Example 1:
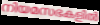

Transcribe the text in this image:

നിയമസഭകളിൽ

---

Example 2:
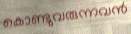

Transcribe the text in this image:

കൊണ്ടുവരുന്നവൻ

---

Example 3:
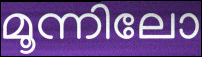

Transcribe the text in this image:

മൂന്നിലോ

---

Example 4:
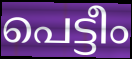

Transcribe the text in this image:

പെട്ടീം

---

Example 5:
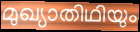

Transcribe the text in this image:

മുഖ്യാതിഥിയും